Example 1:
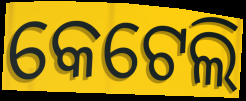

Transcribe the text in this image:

କେଟେଲି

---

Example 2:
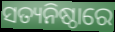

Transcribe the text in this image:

ସତ୍ୟନିଷ୍ଠାରେ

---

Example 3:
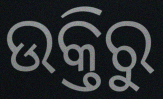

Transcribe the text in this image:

ଉକ୍ତିରୁ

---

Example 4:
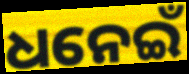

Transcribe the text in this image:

ଧନେଇଁ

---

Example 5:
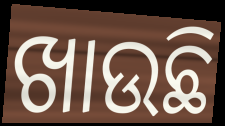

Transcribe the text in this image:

ଖାଉଛି